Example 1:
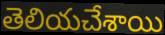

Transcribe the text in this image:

తెలియచేశాయి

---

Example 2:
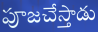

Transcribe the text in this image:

పూజచేస్తాడు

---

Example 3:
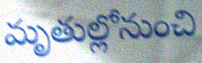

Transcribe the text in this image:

మృతుల్లోనుంచి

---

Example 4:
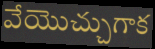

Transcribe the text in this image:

వేయొచ్చుగాక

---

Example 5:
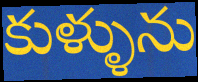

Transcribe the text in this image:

కుళ్ళును